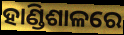
ହାଣ୍ଡିଶାଳରେ